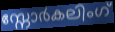
സ്നോർകലിംഗ്